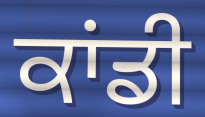
ਕਾਂਡੀ